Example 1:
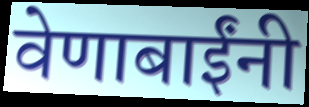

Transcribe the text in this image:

वेणाबाईंनी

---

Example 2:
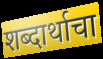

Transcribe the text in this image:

शब्दार्थाचा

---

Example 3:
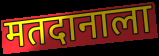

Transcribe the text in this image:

मतदानाला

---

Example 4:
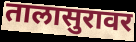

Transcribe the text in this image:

तालासुरावर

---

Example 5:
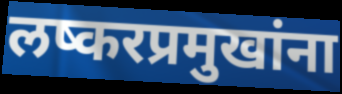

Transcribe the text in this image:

लष्करप्रमुखांना